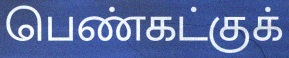
பெண்கட்குக்